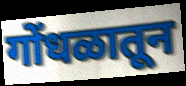
गोंधळातून